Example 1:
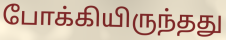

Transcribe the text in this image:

போக்கியிருந்தது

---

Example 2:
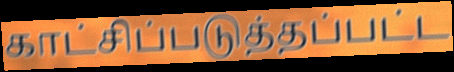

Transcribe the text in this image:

காட்சிப்படுத்தப்பட்ட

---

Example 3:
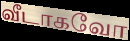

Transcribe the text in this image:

வீடாகவோ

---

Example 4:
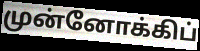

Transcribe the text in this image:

முன்னோக்கிப்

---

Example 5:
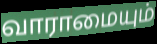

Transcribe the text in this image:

வாராமையும்